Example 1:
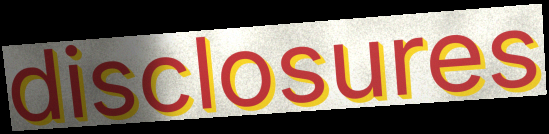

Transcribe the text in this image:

disclosures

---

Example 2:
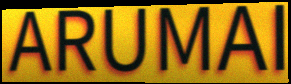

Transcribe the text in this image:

ARUMAI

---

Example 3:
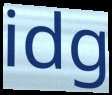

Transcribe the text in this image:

idg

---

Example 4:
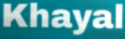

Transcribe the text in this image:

Khayal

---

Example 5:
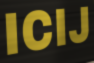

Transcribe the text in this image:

ICIJ